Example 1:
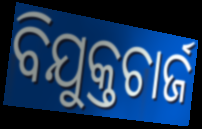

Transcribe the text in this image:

ବିଯୁକ୍ତଚାର୍ଜ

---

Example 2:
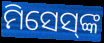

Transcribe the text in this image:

ମିସେସ୍‍ଙ୍କ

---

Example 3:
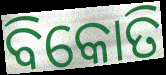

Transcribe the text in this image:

ବିକୋତି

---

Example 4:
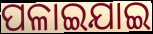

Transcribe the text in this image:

ପଳାଇଯାଇ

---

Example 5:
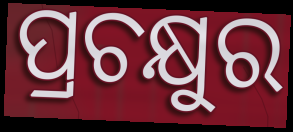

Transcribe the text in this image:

ପ୍ରଚକ୍ଷୁର